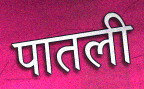
पातली